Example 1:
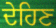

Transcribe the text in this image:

ਦੇਹਿਣ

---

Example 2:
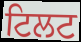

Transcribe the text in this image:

ਟਿਲਟ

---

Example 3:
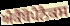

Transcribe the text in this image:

ਐਕੈਂਥੋਪੈਨੈਕਸ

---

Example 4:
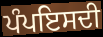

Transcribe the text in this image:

ਪੰਪਇਸਦੀ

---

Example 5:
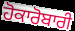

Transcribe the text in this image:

ਹੋਕਾਰੋਬਾਰੀ